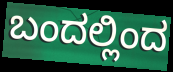
ಬಂದಲ್ಲಿಂದ